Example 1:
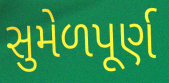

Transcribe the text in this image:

સુમેળપૂર્ણ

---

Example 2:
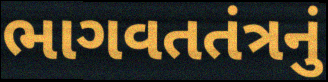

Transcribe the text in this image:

ભાગવતતંત્રનું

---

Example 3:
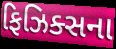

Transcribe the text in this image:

ફિઝિક્સના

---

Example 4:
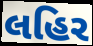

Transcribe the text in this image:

લહિર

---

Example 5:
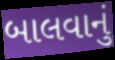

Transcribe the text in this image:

બાલવાનું